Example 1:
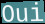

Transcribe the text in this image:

Oui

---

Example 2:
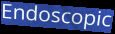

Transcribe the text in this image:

Endoscopic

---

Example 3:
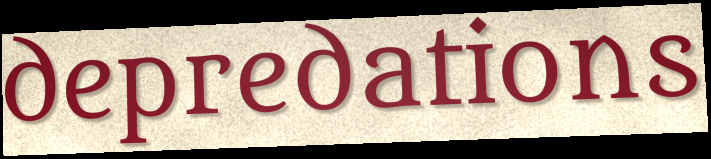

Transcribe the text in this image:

depredations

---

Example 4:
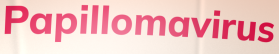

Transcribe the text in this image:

Papillomavirus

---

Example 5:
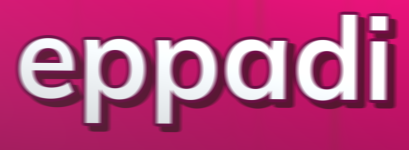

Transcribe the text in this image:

eppadi